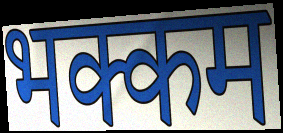
भक्‍कम